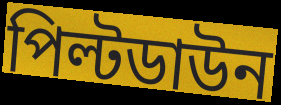
পিল্টডাউন